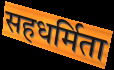
सहधर्मिता